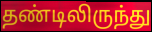
தண்டிலிருந்து